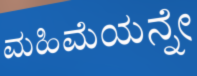
ಮಹಿಮೆಯನ್ನೇ